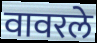
वावरले